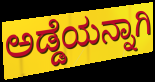
ಅಡ್ಡೆಯನ್ನಾಗಿ